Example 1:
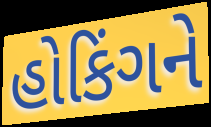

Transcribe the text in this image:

હોકિંગને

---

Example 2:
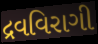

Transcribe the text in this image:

દ્રવવિરાગી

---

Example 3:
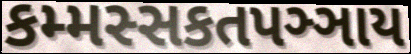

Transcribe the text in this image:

કમ્મસ્સકતપઞ્ઞાય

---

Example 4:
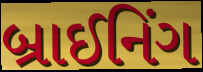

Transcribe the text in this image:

બ્રાઈનિંગ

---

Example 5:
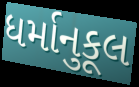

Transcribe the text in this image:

ધર્માનુકૂલ